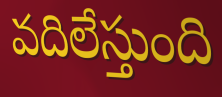
వదిలేస్తుంది